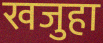
खजुहा